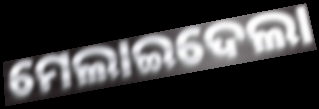
ମେଲାଇଦେଲା